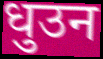
धुउन